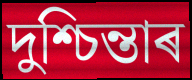
দুশ্চিন্তাৰ